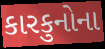
કારકુનોના